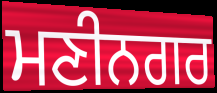
ਮਣੀਨਗਰ